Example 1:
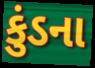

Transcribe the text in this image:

કુંડના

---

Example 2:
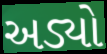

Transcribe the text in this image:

અડ્યો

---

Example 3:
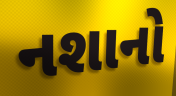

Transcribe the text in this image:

નશાનો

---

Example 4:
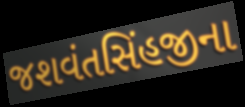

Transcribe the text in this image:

જશવંતસિંહજીના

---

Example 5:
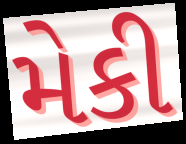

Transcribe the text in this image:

મેકી